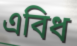
এবিধ